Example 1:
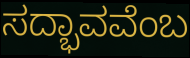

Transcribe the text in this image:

ಸದ್ಭಾವವೆಂಬ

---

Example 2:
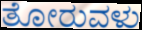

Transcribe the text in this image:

ತೋರುವಳು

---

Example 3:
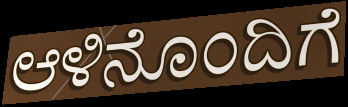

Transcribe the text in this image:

ಆಳಿನೊಂದಿಗೆ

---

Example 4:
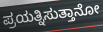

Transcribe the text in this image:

ಪ್ರಯತ್ನಿಸುತ್ತಾನೋ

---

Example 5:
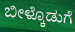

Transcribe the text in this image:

ಬೀಳ್ಕೊಡುಗೆ